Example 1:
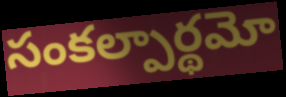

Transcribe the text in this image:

సంకల్పార్థమో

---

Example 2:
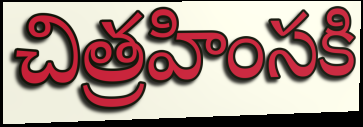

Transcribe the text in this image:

చిత్రహింసకి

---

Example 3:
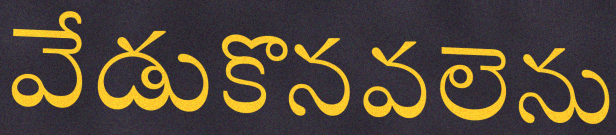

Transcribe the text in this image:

వేడుకొనవలెను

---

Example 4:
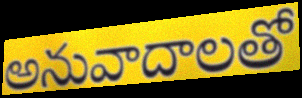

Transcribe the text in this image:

అనువాదాలతో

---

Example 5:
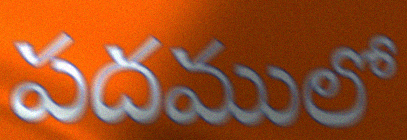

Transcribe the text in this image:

పదములో